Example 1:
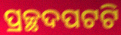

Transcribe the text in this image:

ପ୍ରଚ୍ଛଦପଟଟି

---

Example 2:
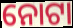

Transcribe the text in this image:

ନୋଟା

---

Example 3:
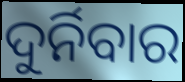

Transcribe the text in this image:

ଦୁର୍ନିବାର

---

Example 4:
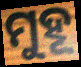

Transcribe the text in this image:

ମୁହୂ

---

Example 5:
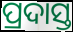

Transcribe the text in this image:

ପ୍ରଦାସ୍ତ